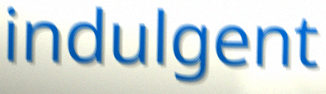
indulgent